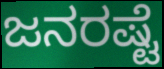
ಜನರಷ್ಟೆ